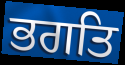
ਭਗਤਿ